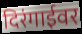
दिरंगाईवर